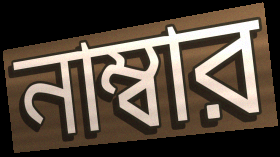
নাম্বার